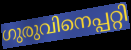
ഗുരുവിനെപ്പറ്റി